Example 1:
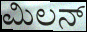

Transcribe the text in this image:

ಮಿಲನ್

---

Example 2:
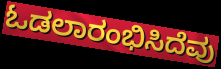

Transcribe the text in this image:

ಓಡಲಾರಂಭಿಸಿದೆವು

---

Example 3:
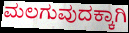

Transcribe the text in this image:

ಮಲಗುವುದಕ್ಕಾಗಿ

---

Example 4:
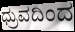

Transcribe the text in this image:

ಧ್ರುವದಿಂದ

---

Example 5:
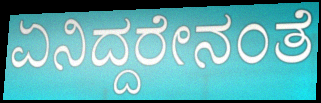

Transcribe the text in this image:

ಏನಿದ್ದರೇನಂತೆ